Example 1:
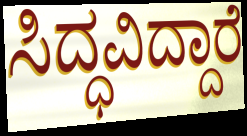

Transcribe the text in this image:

ಸಿದ್ಧವಿದ್ದಾರೆ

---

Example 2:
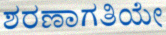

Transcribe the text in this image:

ಶರಣಾಗತಿಯೇ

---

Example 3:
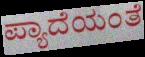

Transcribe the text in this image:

ಪ್ಯಾದೆಯಂತೆ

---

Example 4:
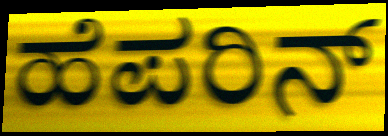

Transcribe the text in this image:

ಹೆಪರಿನ್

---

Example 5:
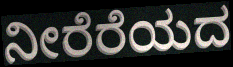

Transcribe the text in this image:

ನೀರೆರೆಯದ